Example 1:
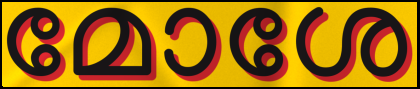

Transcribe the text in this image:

മോശേ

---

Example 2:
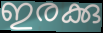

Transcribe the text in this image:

ഇരക്കു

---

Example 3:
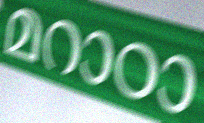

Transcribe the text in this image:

മറാഠാ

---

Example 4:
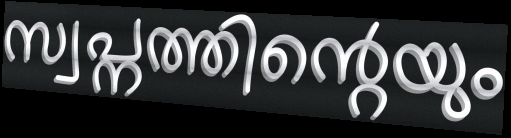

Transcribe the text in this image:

സ്വപ്നത്തിന്റെയും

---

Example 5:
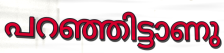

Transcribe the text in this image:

പറഞ്ഞിട്ടാണു